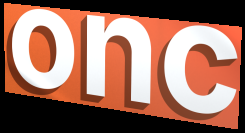
onc